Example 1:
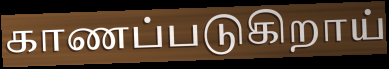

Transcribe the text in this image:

காணப்படுகிறாய்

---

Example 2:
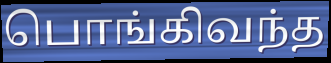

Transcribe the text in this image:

பொங்கிவந்த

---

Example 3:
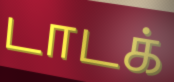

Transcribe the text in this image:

டாடக்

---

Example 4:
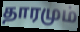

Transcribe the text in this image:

தாரமும்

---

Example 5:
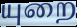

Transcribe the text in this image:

யுறை